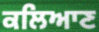
ਕਲਿਆਣ